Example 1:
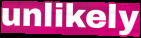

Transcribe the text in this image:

unlikely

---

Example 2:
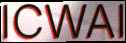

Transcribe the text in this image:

ICWAI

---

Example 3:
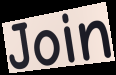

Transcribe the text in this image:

Join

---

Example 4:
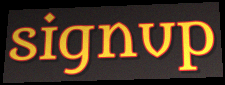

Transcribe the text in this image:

signup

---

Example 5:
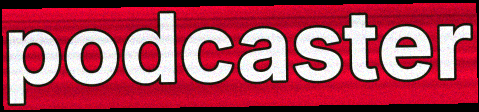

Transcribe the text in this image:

podcaster